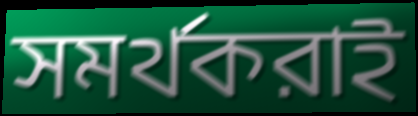
সমর্থকরাই